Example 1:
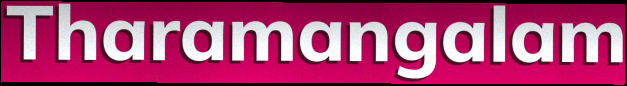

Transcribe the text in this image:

Tharamangalam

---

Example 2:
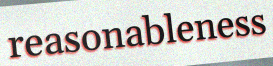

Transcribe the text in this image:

reasonableness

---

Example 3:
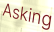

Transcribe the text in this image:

Asking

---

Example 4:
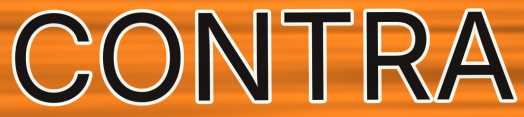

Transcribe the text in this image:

CONTRA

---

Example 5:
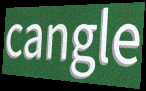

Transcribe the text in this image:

cangle